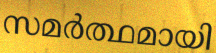
സമർത്ഥമായി